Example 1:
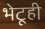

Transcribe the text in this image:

भेटूही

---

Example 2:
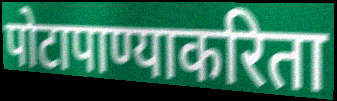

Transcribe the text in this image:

पोटापाण्याकरिता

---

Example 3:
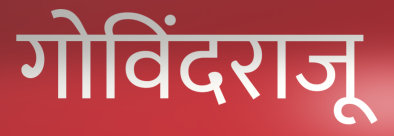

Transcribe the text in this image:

गोविंदराजू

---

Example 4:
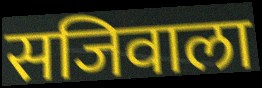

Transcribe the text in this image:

सजिवाला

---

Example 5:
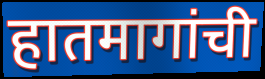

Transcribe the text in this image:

हातमागांची